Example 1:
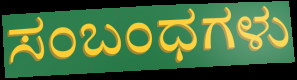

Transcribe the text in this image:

ಸಂಬಂಧಗಳು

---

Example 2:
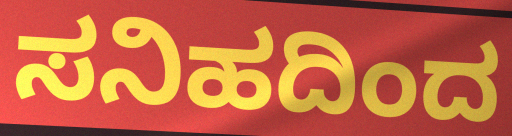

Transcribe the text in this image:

ಸನಿಹದಿಂದ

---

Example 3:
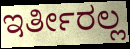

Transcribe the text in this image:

ಇರ್ತೀರಲ್ಲ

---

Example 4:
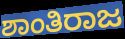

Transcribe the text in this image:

ಶಾಂತಿರಾಜ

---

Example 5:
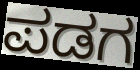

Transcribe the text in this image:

ಪಡಗ